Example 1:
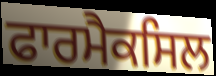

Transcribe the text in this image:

ਫਾਰਮੈਕਸਿਲ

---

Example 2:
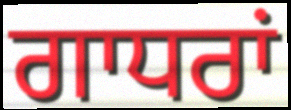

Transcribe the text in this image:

ਗਾਧਰਾਂ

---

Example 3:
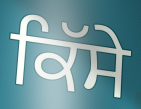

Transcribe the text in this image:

ਕਿੱਸੇ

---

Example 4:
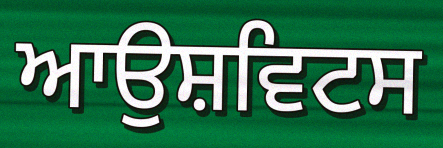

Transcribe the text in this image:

ਆਉਸ਼ਵਿਟਸ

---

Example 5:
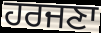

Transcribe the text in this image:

ਹਰਜਣਾ